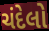
ચંદેલો